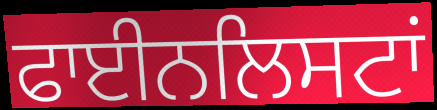
ਫਾਈਨਲਿਸਟਾਂ